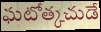
ఘటోత్కచుడే